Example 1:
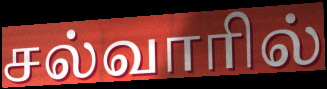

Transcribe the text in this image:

சல்வாரில்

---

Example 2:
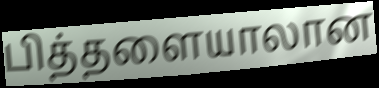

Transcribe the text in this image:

பித்தளையாலான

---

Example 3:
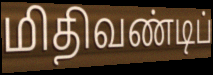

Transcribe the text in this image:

மிதிவண்டிப்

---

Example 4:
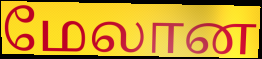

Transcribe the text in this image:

மேலான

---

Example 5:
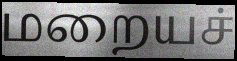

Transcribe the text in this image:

மறையச்